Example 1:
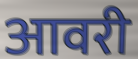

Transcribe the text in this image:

आवरी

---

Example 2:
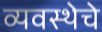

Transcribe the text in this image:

व्यवस्थेचे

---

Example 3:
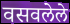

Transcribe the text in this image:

वसवलेले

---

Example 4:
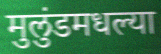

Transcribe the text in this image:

मुलुंडमधल्या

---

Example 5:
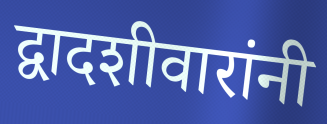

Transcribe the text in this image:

द्वादशीवारांनी